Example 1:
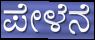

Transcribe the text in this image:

ಪೇಳೆನೆ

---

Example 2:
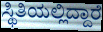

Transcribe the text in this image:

ಸ್ಥಿತಿಯಲ್ಲಿದ್ದಾರೆ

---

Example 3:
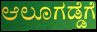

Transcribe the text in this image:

ಆಲೂಗಡ್ಡೆಗೆ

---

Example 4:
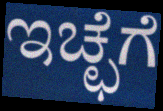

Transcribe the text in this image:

ಇಚ್ಛೆಗೆ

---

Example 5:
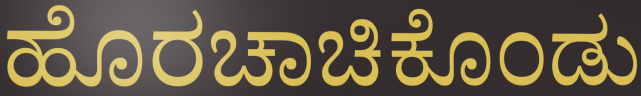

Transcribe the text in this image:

ಹೊರಚಾಚಿಕೊಂಡು